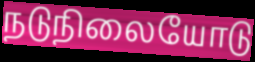
நடுநிலையோடு